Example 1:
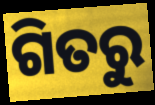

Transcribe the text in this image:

ଗିତରୁ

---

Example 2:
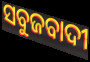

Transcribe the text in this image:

ସବୁଜବାଦୀ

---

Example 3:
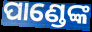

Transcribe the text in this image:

ପାଣ୍ଡେଙ୍କ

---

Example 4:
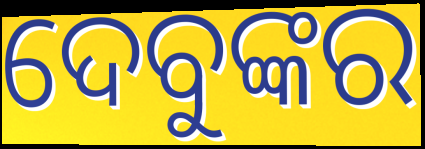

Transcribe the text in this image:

ଦେବୁଙ୍କର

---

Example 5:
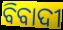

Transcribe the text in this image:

ବିବାଦୀ